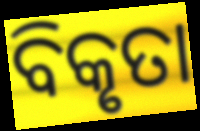
ବିକୃତା